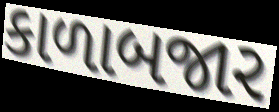
કાળાબજાર